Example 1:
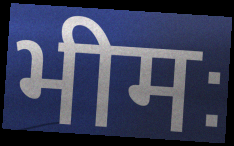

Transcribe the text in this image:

भीमः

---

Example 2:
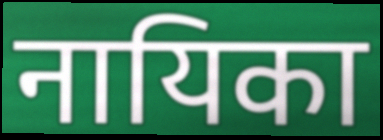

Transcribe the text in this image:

नायिका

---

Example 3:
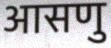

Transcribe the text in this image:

आसणु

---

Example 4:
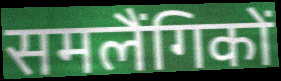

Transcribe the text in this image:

समलैंगिकों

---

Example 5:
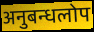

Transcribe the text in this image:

अनुबन्धलोप